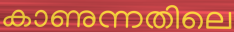
കാണുന്നതിലെ